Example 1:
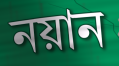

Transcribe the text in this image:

নয়ান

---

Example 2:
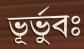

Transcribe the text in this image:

ভূর্ভুবঃ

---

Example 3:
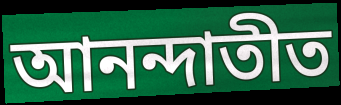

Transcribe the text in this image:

আনন্দাতীত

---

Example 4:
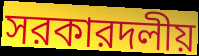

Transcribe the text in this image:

সরকারদলীয়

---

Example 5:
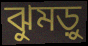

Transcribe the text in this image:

ঝুমড়ু